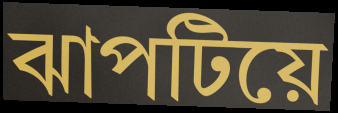
ঝাপটিয়ে